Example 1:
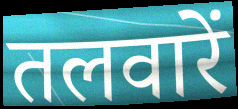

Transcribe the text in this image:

तलवारें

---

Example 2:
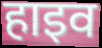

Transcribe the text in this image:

हाइव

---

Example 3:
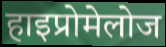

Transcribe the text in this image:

हाइप्रोमेलोज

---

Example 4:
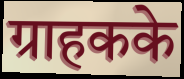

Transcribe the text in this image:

ग्राहकके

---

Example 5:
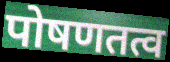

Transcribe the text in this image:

पोषणतत्व